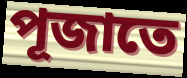
পূজাতে